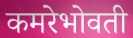
कमरेभोवती